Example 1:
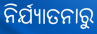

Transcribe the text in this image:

ନିର୍ଯ୍ୟାତନାରୁ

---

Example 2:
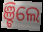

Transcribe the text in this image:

ଞ୍ଚିଲେ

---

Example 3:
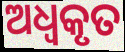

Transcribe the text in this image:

ଅଧ୍ବକୃତ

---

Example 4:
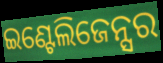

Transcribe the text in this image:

ଇଣ୍ଟେଲିଜେନ୍ସର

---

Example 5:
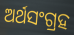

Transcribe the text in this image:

ଅର୍ଥସଂଗ୍ରହ